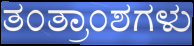
ತಂತ್ರಾಂಶಗಳು